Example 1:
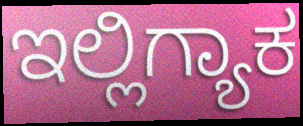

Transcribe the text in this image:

ಇಲ್ಲಿಗ್ಯಾಕ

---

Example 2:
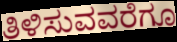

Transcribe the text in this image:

ತಿಳಿಸುವವರೆಗೂ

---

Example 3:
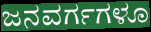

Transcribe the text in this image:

ಜನವರ್ಗಗಳೂ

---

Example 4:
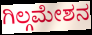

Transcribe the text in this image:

ಗಿಲ್ಗಮೇಶನ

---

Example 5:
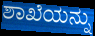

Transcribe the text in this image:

ಶಾಖೆಯನ್ನು